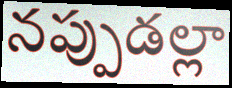
నప్పుడల్లా